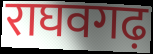
राघवगढ़